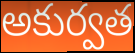
అకుర్వత